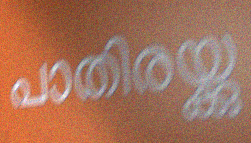
പാതിരയ്ക്കു